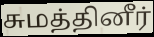
சுமத்தினீர்